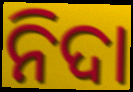
ନିଦା